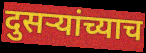
दुसऱ्यांच्याच